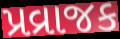
પ્રવ્રાજક